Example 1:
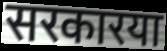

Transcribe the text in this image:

सरकारया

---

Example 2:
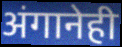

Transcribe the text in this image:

अंगानेही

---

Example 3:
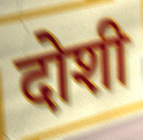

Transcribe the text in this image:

दोशी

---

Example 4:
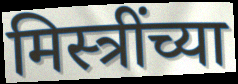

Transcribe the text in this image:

मिस्त्रींच्या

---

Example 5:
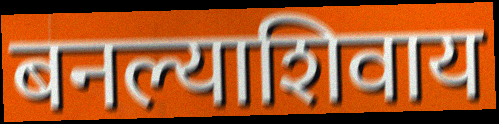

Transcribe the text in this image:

बनल्याशिवाय